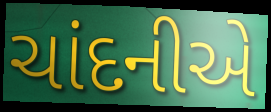
ચાંદનીએ